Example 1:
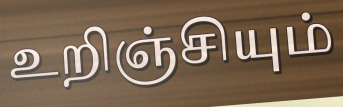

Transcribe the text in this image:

உறிஞ்சியும்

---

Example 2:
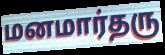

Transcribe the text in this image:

மனமார்தரு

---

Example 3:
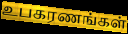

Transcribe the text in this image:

உபகரணங்கள்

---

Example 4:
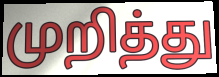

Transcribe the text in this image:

முறித்து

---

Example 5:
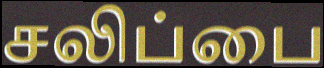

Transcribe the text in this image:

சலிப்பை